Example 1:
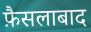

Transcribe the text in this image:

फ़ैसलाबाद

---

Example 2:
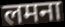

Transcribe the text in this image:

लमना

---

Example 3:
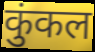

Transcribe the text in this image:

कुंकल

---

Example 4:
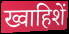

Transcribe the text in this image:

ख्वाहिशें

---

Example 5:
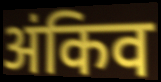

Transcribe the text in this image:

अंकिव